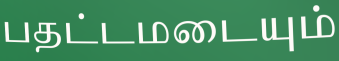
பதட்டமடையும்